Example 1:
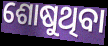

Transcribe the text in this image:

ଶୋଷୁଥିବା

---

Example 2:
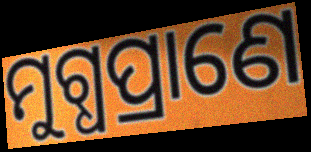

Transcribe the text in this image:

ମୁଗ୍ଧପ୍ରାଣେ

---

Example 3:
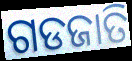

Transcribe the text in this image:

ଗଡଜାତି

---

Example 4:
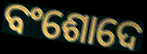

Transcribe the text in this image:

ବଂଶୋଦେ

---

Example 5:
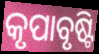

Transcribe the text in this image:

କୃପାବୃଷ୍ଟି